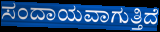
ಸಂದಾಯವಾಗುತ್ತಿದೆ